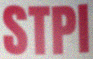
STPI